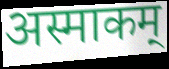
अस्माकम्